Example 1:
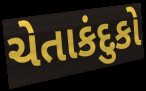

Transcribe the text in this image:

ચેતાકંદુકો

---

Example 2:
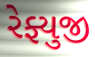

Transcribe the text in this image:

રેફ્યુજી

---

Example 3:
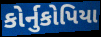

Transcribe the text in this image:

કોર્નુકોપિયા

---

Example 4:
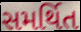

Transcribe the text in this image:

સમર્થિત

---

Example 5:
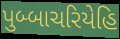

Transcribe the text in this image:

પુબ્બાચરિયેહિ